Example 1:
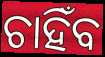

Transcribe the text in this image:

ଚାହିଁବ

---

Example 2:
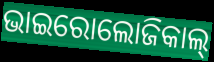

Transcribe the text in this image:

ଭାଇରୋଲୋଜିକାଲ୍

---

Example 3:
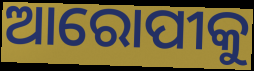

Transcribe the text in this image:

ଆରୋପୀକୁ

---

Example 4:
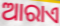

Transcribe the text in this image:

ଆରାଏ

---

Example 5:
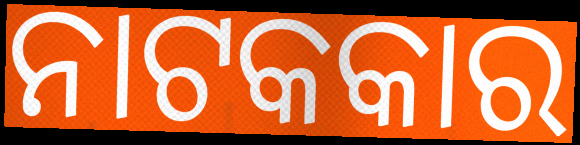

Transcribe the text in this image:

ନାଟକକାର